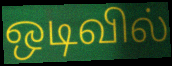
ஒடிவில்